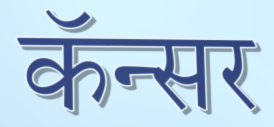
कॅन्सर